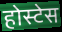
होस्टेस